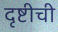
दृष्टीची